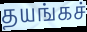
தயங்கச்